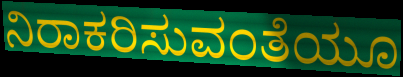
ನಿರಾಕರಿಸುವಂತೆಯೂ